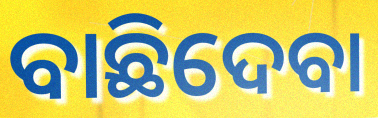
ବାଛିଦେବା